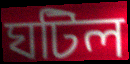
ঘটিল